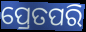
ପ୍ରେତପରି